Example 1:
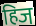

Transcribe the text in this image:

हिज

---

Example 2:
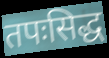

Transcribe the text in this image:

तपःसिद्ध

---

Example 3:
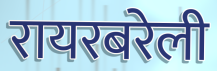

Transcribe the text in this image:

रायरबरेली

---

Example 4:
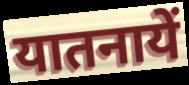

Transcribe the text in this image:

यातनायें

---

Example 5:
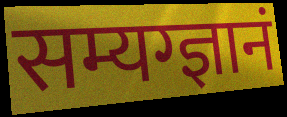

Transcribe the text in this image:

सम्यग्ज्ञानं